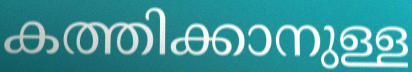
കത്തിക്കാനുള്ള